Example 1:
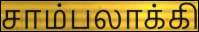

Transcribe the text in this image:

சாம்பலாக்கி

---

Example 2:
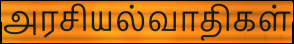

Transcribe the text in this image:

அரசியல்வாதிகள்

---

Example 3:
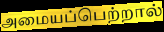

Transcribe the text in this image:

அமையப்பெற்றால்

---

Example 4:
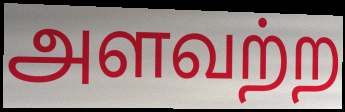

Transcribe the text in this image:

அளவற்ற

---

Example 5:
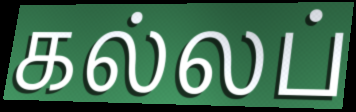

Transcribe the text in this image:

கல்லப்